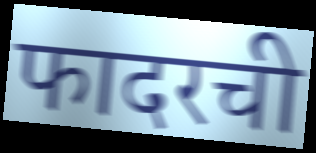
फादरची